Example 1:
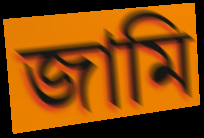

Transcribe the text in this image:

জামি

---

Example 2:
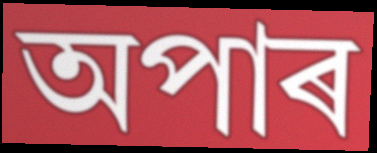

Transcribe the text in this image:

অপাৰ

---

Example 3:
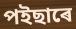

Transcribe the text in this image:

পইছাৰে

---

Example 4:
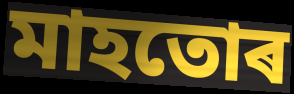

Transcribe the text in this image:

মাহতোৰ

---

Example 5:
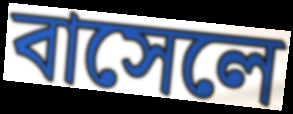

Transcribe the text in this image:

বাসেলে